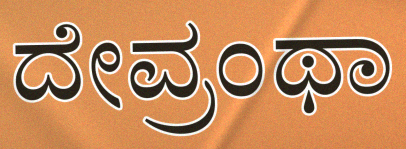
ದೇವ್ರಂಥಾ